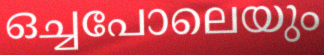
ഒച്ചപോലെയും